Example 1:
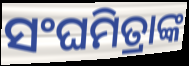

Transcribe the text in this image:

ସଂଘମିତ୍ରାଙ୍କ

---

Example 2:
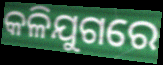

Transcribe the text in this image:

କଳିଯୁଗରେ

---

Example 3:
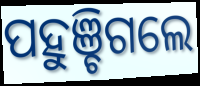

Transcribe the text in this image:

ପହୁଞ୍ଚିଗଲେ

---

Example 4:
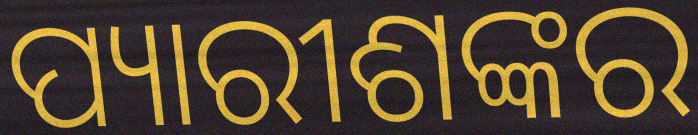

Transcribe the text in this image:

ପ୍ୟାରୀଶଙ୍କର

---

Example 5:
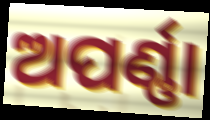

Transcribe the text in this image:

ଅପର୍ଣ୍ଣା